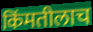
किंमतीलाच